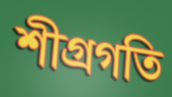
শীগ্রগতি